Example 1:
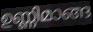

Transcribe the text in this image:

ഉണ്ണിമാങ്ങ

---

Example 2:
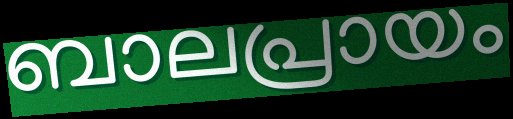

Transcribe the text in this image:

ബാലപ്രായം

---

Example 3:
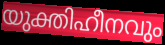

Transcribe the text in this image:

യുക്തിഹീനവും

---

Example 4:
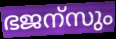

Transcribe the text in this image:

ഭജന്സും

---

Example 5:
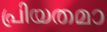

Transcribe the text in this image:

പ്രിയതമാ